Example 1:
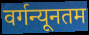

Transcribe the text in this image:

वर्गन्यूनतम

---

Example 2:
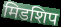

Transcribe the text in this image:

मिडशिप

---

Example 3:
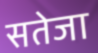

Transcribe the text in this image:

सतेजा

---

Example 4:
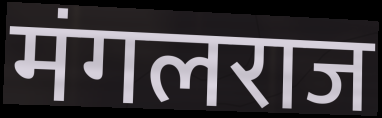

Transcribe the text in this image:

मंगलराज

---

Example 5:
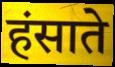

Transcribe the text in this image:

हंसाते